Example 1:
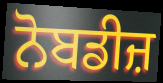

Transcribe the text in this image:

ਨੋਬਡੀਜ਼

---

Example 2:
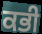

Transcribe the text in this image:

ਕਭੀ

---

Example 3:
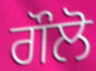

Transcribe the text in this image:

ਗੌਲੋ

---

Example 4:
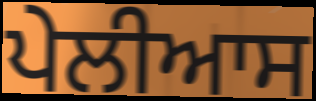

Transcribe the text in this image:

ਪੇਲੀਆਸ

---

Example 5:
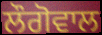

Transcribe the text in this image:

ਲੌਗੋਵਾਲ